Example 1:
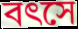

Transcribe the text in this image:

বৎসে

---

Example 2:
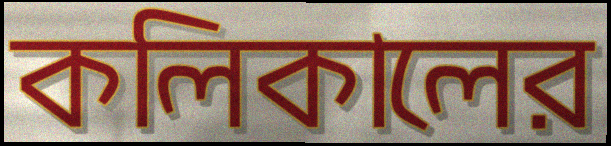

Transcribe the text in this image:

কলিকালের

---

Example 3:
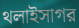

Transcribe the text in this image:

থলাইসাগর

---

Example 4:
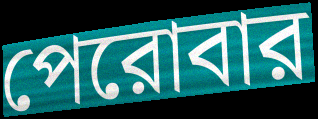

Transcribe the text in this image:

পেরোবার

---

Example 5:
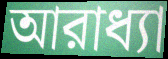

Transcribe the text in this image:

আরাধ্যা